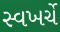
સ્વખર્ચે